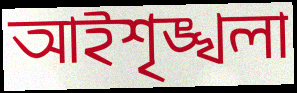
আইশৃঙ্খলা